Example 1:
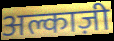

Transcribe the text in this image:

अल्काज़ी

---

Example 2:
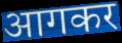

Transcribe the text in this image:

आगकर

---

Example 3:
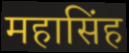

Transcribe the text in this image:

महासिंह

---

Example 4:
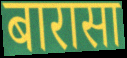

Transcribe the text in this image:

बारासा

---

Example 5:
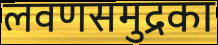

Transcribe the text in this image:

लवणसमुद्रका